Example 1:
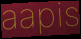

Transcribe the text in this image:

aapis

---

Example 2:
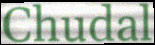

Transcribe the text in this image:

Chudal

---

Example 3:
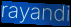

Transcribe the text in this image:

rayandi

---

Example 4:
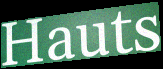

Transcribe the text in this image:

Hauts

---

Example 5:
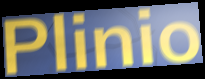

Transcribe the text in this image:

Plinio